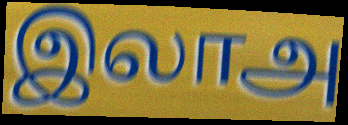
இலாஅ